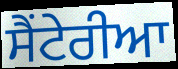
ਸੈਂਟੇਰੀਆ